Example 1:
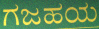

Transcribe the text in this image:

ಗಜಹಯ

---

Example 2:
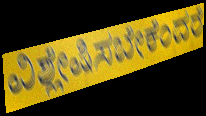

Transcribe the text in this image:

ವಿಶ್ಲೇಷಿಸಬೇಕೆಂದರೆ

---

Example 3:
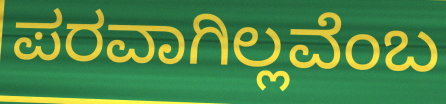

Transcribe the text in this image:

ಪರವಾಗಿಲ್ಲವೆಂಬ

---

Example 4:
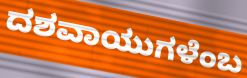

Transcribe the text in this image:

ದಶವಾಯುಗಳೆಂಬ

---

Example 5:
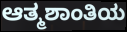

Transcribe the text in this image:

ಆತ್ಮಶಾಂತಿಯ